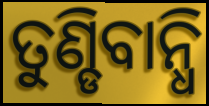
ତୁଣ୍ଡିବାନ୍ଧି